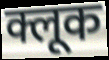
क्लूक